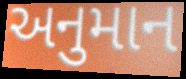
અનુમાન